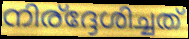
നിര്ദ്ദേശിച്ചത്